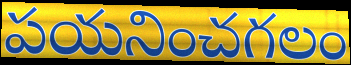
పయనించగలం